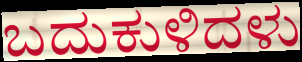
ಬದುಕುಳಿದಳು